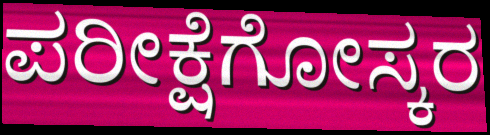
ಪರೀಕ್ಷೆಗೋಸ್ಕರ